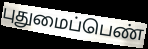
புதுமைப்பெண்